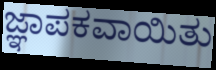
ಜ್ಞಾಪಕವಾಯಿತು